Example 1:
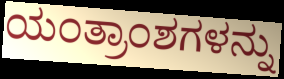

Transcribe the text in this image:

ಯಂತ್ರಾಂಶಗಳನ್ನು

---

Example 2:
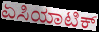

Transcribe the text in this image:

ಏಸಿಯಾಟಿಕ್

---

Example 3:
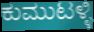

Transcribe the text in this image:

ಕುಮುಟಳ್ಳಿ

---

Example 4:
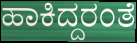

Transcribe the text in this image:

ಹಾಕಿದ್ದರಂತೆ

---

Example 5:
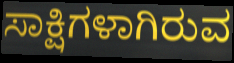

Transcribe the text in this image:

ಸಾಕ್ಷಿಗಳಾಗಿರುವ